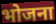
भोजना